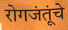
रोगजंतूंचे